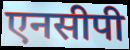
एनसीपी